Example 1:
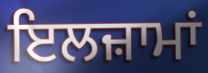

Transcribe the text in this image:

ਇਲਜ਼ਾਮਾਂ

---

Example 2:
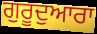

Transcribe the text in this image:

ਗੁਰੂਦੁਆਰਾ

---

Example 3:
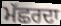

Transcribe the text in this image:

ਮੱਛਰਦਾ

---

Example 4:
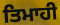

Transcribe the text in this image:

ਤਿਮਾਹੀ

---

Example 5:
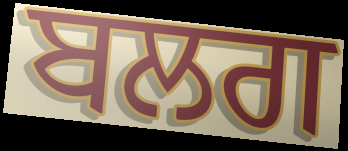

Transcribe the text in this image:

ਬਲਗ